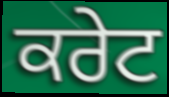
ਕਰੇਟ